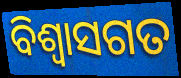
ବିଶ୍ଵାସଗତ